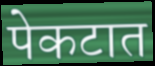
पेकटात